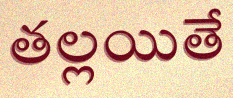
తల్లయితే